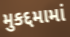
મુકદ્દમામાં